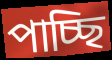
পাচ্ছি